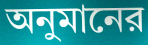
অনুমানের